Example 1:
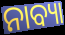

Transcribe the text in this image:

ନାବ୍ୟା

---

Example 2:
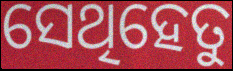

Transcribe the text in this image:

ସେଥିହେତୁ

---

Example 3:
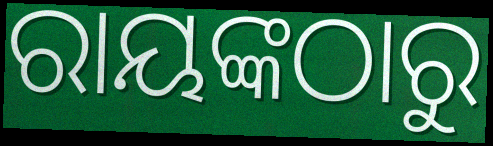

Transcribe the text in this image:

ରାୟଙ୍କଠାରୁ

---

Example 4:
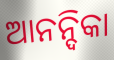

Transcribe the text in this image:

ଆନନ୍ଦିକା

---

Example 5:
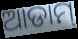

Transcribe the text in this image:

ଆଡାମ୍